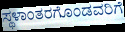
ಸ್ಥಳಾಂತರಗೊಂಡವರಿಗೆ